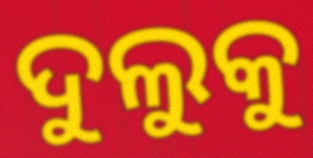
ଦୁଲୁକୁ